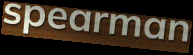
spearman